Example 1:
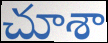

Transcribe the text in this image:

చూశా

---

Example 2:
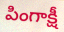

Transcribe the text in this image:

పింగాక్షీ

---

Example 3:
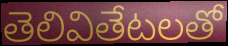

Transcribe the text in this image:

తెలివితేటలతో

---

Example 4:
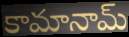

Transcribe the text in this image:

కామానామ్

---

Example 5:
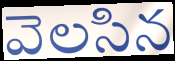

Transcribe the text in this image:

వెలసిన